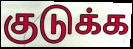
குடுக்க